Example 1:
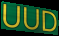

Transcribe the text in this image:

UUD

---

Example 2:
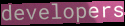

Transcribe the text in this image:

developers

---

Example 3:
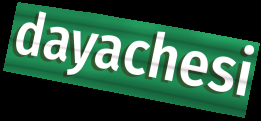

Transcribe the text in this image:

dayachesi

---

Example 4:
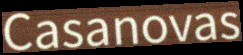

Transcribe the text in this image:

Casanovas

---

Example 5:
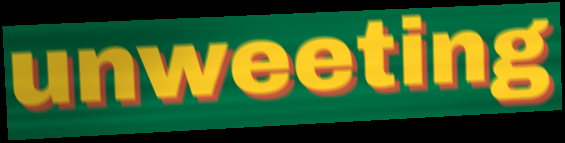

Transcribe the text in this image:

unweeting